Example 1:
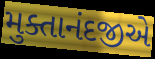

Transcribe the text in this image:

મુક્તાનંદજીએ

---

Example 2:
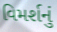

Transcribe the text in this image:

વિમર્શનું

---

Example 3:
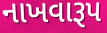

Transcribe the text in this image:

નાખવારૂપ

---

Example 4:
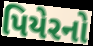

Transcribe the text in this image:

પિયેરનો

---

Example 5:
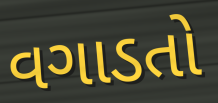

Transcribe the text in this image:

વગાડતો